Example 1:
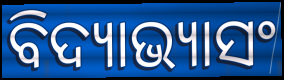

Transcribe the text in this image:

ବିଦ୍ୟାଭ୍ୟାସଂ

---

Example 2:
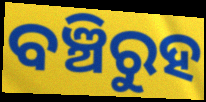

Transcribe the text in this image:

ବଞ୍ଚିରୁହ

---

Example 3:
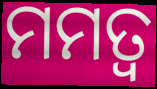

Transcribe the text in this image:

ମମତ୍ୱ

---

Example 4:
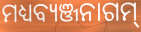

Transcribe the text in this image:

ମଧ୍ୟବ୍ୟଞ୍ଜନାଗମ୍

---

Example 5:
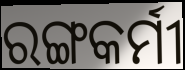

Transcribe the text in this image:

ରଙ୍ଗକର୍ମୀ